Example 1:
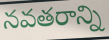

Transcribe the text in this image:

నవతరాన్ని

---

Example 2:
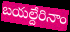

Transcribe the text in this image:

బయల్దేరినాం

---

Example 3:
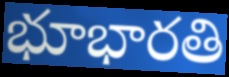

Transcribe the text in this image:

భూభారతి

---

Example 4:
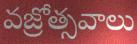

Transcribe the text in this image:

వజ్రోత్సవాలు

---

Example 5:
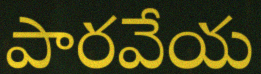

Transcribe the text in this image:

పారవేయ